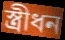
স্ত্রীধন